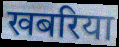
खबरिया